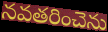
నవతరించెను